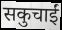
सकुचाईं